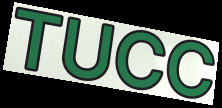
TUCC